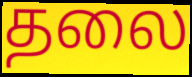
தலை